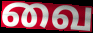
வை